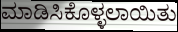
ಮಾಡಿಸಿಕೊಳ್ಳಲಾಯಿತು